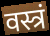
वस्त्रं